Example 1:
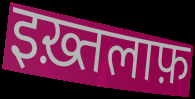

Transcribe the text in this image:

इख़्तलाफ़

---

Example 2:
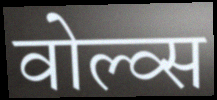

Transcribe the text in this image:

वोल्व्स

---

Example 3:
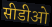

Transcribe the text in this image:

सीडीओ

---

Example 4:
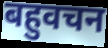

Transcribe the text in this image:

बहुवचन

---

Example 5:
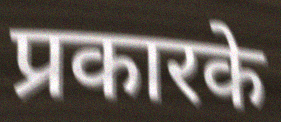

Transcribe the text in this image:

प्रकारके